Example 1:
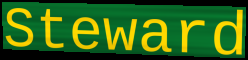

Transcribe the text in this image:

Steward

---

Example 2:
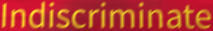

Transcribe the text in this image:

Indiscriminate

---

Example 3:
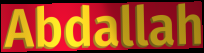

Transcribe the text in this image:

Abdallah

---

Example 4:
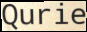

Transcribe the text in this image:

Qurie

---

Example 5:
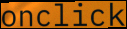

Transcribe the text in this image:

onclick